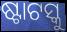
ଷ୍ଟାଟସ୍କୁ